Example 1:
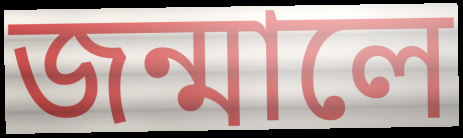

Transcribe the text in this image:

জন্মালে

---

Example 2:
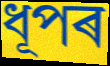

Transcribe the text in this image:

ধূপৰ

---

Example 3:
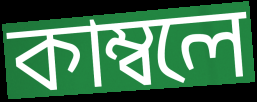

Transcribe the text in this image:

কাম্বলে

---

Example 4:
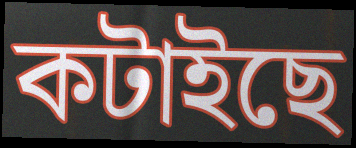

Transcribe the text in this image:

কটাইছে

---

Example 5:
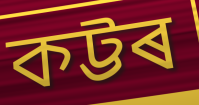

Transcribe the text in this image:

কট্টৰ